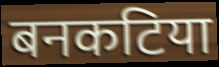
बनकटिया